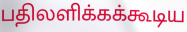
பதிலளிக்கக்கூடிய